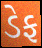
ડેફ